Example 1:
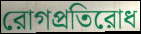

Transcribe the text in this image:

রোগপ্রতিরোধ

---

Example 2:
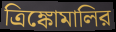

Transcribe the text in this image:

ত্রিঙ্কোমালির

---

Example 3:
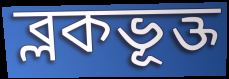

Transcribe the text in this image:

ব্লকভূক্ত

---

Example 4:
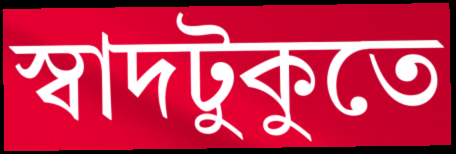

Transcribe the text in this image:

স্বাদটুকুতে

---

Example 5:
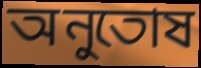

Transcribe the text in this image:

অনুতোষ